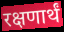
रक्षणार्थं